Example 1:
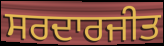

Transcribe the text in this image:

ਸਰਦਾਰਜੀਤ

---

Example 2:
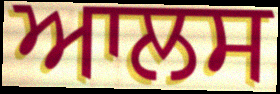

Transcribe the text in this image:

ਆਲਸ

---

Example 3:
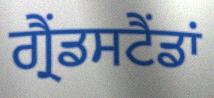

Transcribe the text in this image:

ਗ੍ਰੈਂਡਸਟੈਂਡਾਂ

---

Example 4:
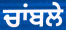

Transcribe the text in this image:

ਚਾਂਬਲੇ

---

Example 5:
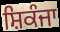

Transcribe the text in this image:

ਸ਼ਿਕੰਜਾ